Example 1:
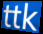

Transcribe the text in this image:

ttk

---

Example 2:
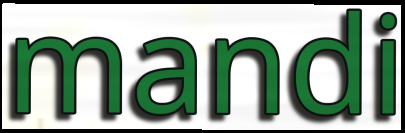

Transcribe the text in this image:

mandi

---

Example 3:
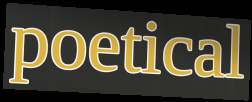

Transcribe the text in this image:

poetical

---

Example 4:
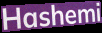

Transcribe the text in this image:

Hashemi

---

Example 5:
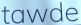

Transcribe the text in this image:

tawde